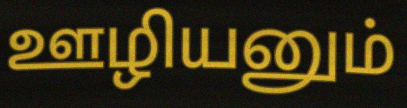
ஊழியனும்